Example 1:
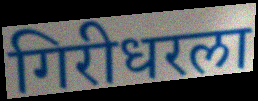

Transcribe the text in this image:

गिरीधरला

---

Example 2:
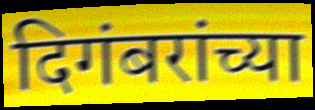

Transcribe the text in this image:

दिगंबरांच्या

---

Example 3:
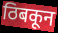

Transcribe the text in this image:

ठिबकून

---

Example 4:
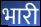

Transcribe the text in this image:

भारी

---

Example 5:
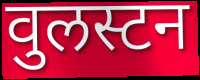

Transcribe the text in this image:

वुलस्टन